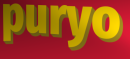
puryo